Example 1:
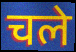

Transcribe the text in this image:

चले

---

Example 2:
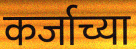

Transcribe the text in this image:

कर्जाच्या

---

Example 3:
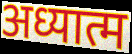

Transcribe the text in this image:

अध्यात्म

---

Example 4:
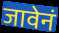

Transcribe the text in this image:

जावेनं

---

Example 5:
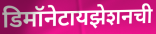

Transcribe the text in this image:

डिमॉनेटायझेशनची